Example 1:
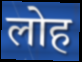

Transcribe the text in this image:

लोह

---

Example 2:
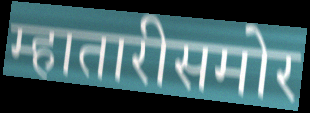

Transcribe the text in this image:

म्हातारीसमोर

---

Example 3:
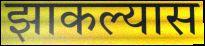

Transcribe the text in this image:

झाकल्यास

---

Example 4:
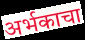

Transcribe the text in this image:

अर्भकाचा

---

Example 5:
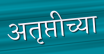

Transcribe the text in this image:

अतृप्तीच्या